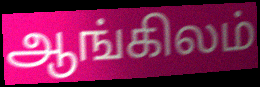
ஆங்கிலம்